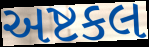
અષ્ટકલ